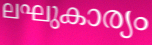
ലഘുകാര്യം